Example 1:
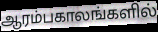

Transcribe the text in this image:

ஆரம்பகாலங்களில்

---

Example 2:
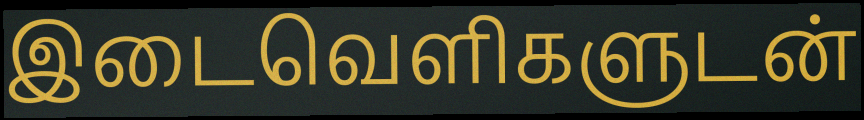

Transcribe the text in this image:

இடைவெளிகளுடன்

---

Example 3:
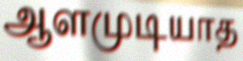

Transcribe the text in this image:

ஆளமுடியாத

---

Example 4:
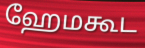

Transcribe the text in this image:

ஹேமகூட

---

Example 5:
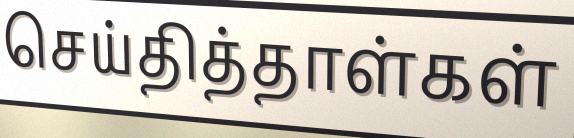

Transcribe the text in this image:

செய்தித்தாள்கள்